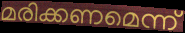
മരിക്കണമെന്ന്